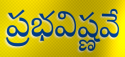
ప్రభవిష్ణవే